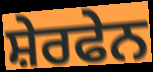
ਸ਼ੇਰਫੇਨ